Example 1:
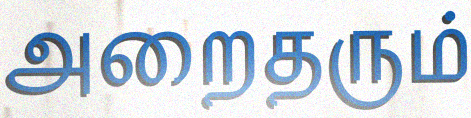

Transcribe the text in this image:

அறைதரும்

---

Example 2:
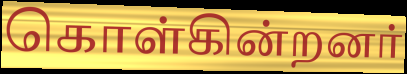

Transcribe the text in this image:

கொள்கின்றனர்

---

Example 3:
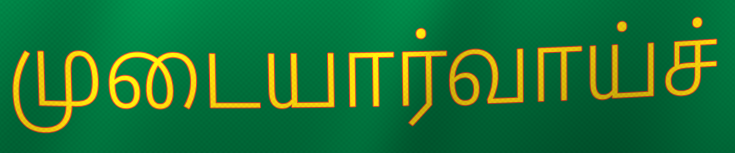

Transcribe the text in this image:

முடையார்வாய்ச்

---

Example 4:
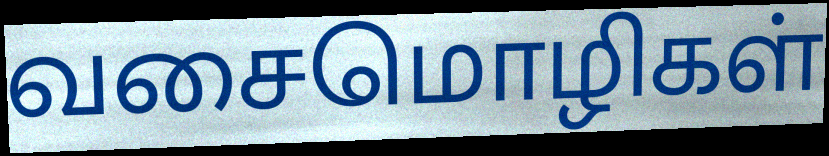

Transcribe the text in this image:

வசைமொழிகள்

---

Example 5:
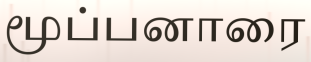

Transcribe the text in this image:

மூப்பனாரை